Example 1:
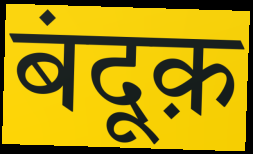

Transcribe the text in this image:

बंदूक़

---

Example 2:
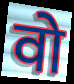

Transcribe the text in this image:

वो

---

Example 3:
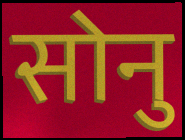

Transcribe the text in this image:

सोनु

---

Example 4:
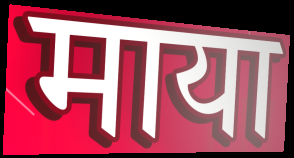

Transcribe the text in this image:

माया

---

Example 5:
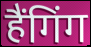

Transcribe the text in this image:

हैंगिंग